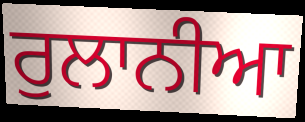
ਰੁਲਾਨੀਆ